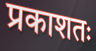
प्रकाशतः